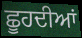
ਛੂਹਦੀਆਂ